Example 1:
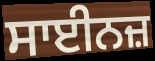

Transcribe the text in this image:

ਸਾਈਨਜ਼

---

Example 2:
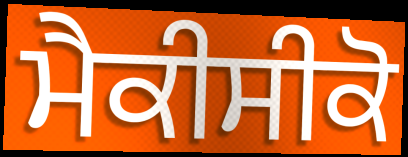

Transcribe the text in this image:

ਮੈਕੀਸੀਕੋ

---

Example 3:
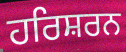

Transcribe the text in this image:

ਹਰਿਸ਼ਰਨ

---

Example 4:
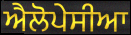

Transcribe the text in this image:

ਐਲੋਪੇਸੀਆ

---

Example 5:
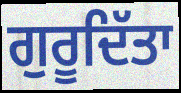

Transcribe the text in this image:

ਗੁਰੂਦਿੱਤਾ